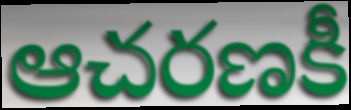
ఆచరణకీ